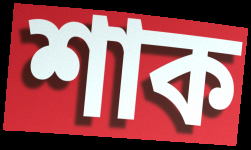
শাক